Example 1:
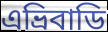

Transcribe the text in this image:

এভ্ৰিবাডি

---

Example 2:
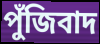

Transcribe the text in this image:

পুঁজিবাদ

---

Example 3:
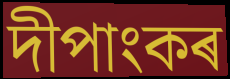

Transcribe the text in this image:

দীপাংকৰ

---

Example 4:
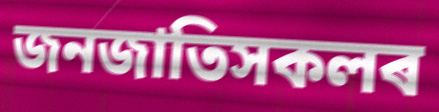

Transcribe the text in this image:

জনজাতিসকলৰ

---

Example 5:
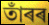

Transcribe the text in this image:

তাঁৰৰ